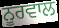
ਨੂਰਵਾਲ